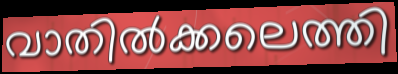
വാതിൽക്കലെത്തി